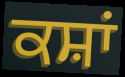
ਕਸ਼ਾਂ